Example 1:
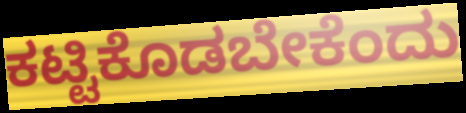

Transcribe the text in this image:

ಕಟ್ಟಿಕೊಡಬೇಕೆಂದು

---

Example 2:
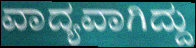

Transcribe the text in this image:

ವಾದ್ಯವಾಗಿದ್ದು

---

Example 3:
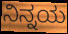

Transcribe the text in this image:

ನಿನ್ನಯ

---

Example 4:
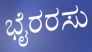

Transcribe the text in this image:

ಭೈರರಸು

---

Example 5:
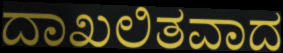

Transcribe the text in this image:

ದಾಖಲಿತವಾದ